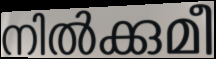
നിൽക്കുമീ